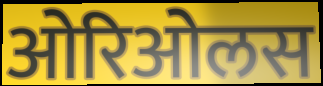
ओरिओलस